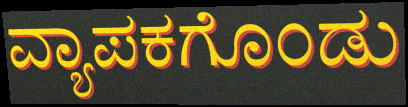
ವ್ಯಾಪಕಗೊಂಡು